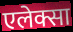
एलेक्सा